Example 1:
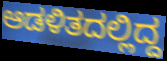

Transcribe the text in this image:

ಆಡಳಿತದಲ್ಲಿದ್ದ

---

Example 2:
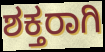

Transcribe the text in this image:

ಶಕ್ತರಾಗಿ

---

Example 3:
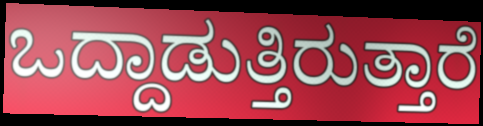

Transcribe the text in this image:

ಒದ್ದಾಡುತ್ತಿರುತ್ತಾರೆ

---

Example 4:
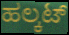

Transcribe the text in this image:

ಹಲ್ಕಟ್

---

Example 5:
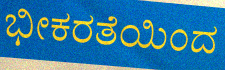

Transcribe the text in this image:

ಭೀಕರತೆಯಿಂದ